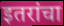
इतरांचा